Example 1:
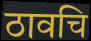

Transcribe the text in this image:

ठावचि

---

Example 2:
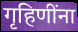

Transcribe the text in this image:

गृहिणींना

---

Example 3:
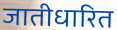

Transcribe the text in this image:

जातीधारित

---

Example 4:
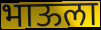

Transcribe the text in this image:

भाऊला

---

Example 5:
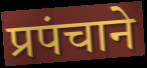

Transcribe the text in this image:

प्रपंचाने